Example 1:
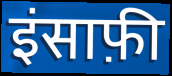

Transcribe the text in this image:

इंसाफ़ी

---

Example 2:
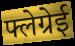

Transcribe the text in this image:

फ्लेग्रेई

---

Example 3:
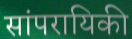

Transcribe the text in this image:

सांपरायिकी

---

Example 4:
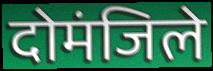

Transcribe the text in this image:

दोमंजिले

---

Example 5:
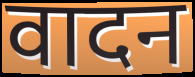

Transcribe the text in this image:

वादन